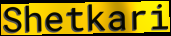
Shetkari